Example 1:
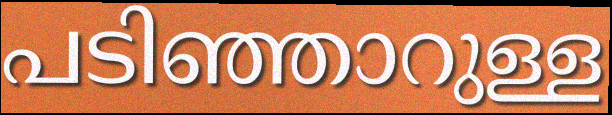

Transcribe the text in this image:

പടിഞ്ഞാറുള്ള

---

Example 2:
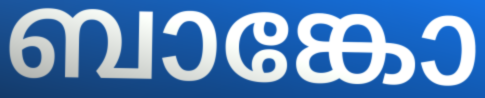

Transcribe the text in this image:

ബാങ്കോ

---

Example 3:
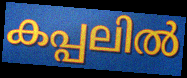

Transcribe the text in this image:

കപ്പലിൽ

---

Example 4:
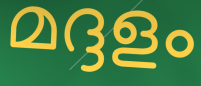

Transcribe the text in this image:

മദ്ദളം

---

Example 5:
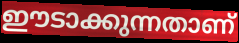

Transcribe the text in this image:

ഈടാക്കുന്നതാണ്